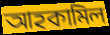
আহকামিল